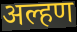
अल्हण